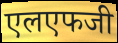
एलएफजी